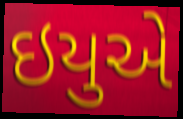
ઇયુએ